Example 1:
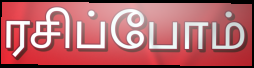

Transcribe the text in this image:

ரசிப்போம்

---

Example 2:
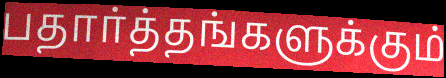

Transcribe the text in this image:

பதார்த்தங்களுக்கும்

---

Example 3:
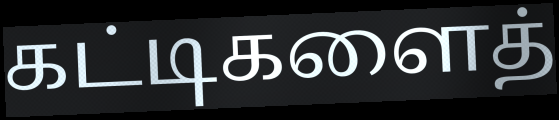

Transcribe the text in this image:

கட்டிகளைத்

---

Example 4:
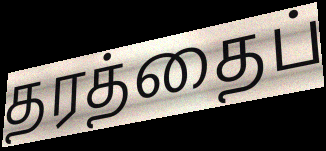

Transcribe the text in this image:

தரத்தைப்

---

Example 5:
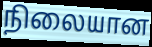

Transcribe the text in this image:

நிலையான